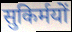
सुकिर्मयों